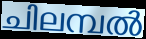
ചിലമ്പൽ